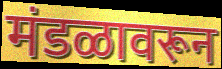
मंडळावरून